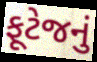
ફૂટેજનું